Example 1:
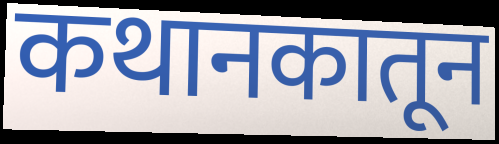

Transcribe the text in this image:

कथानकातून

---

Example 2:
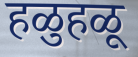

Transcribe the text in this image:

हळुहळू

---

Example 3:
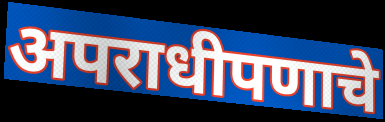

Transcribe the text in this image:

अपराधीपणाचे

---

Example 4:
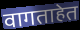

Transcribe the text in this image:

वागताहेत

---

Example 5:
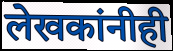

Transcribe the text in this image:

लेखकांनीही